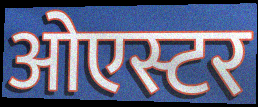
ओएस्टर